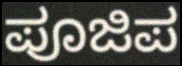
ಪೂಜಿಪ